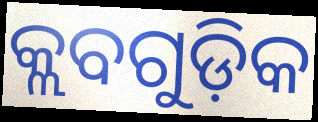
କ୍ଲବଗୁଡ଼ିକ